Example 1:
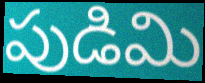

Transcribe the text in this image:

పుడిమి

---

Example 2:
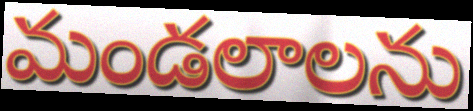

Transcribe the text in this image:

మండలాలను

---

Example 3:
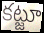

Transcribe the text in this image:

కట్జూ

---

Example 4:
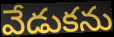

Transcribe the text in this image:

వేడుకను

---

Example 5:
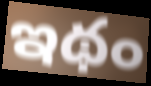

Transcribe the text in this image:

ఇథం